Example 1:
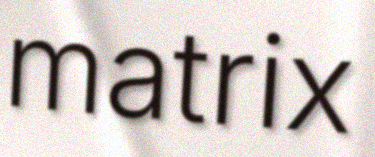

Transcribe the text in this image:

matrix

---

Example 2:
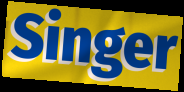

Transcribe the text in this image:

Singer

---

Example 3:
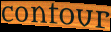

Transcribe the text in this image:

contour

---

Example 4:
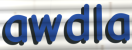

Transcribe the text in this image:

awdla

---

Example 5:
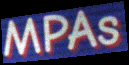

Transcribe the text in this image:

MPAs